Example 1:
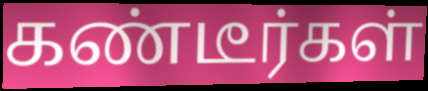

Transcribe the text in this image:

கண்டீர்கள்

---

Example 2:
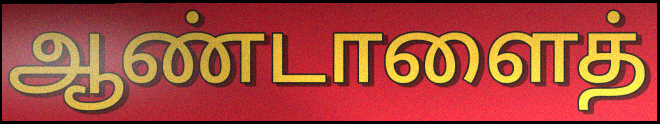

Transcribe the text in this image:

ஆண்டாளைத்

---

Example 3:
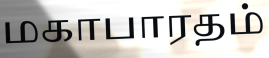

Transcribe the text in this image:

மகாபாரதம்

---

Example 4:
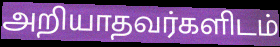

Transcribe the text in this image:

அறியாதவர்களிடம்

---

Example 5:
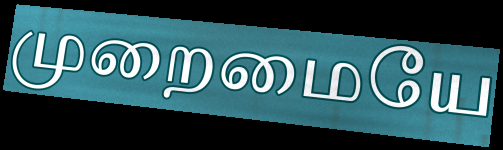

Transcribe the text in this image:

முறைமையே